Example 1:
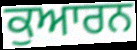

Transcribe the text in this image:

ਕੁਆਰਨ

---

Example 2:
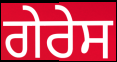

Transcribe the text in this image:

ਗੇਰੇਸ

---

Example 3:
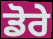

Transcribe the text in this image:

ਡੋਰੇ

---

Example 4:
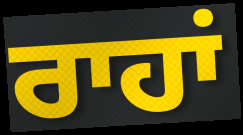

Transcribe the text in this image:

ਰਾਹਾਂ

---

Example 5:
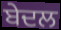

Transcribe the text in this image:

ਬੇਦਲ